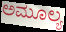
ಅಮೂಲ್ಯ